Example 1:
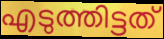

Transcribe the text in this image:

എടുത്തിട്ടത്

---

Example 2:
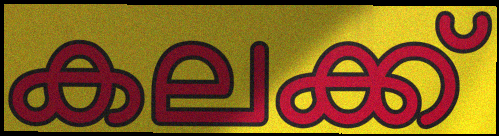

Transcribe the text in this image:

കലക്ക്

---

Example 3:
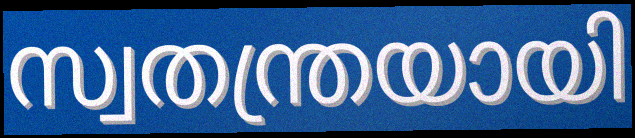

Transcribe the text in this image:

സ്വതന്ത്രയായി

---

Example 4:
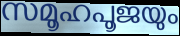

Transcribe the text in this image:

സമൂഹപൂജയും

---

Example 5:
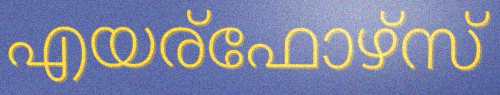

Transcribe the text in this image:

എയര്ഫോഴ്സ്